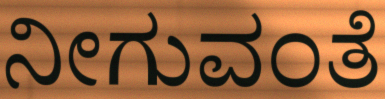
ನೀಗುವಂತೆ